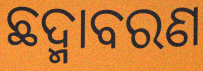
ଛଦ୍ମାବରଣ